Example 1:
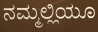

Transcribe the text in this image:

ನಮ್ಮಲ್ಲಿಯೂ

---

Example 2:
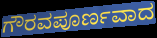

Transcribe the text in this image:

ಗೌರವಪೂರ್ಣವಾದ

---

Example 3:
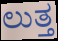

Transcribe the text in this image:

ಲುತ್ತ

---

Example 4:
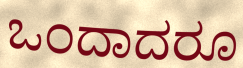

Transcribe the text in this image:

ಒಂದಾದರೂ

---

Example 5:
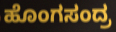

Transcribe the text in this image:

ಹೊಂಗಸಂದ್ರ